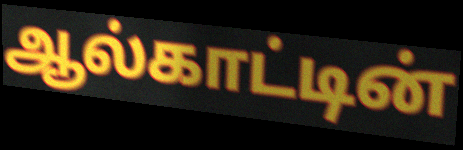
ஆல்காட்டின்